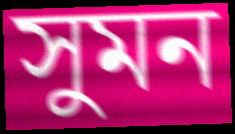
সুমন